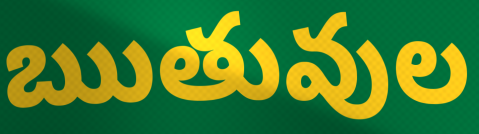
ఋతువుల